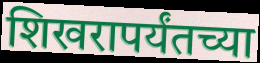
शिखरापर्यंतच्या